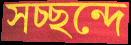
সচ্ছন্দে